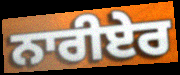
ਨਾਰੀਏਰ